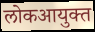
लोकआयुक्त